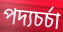
পদ্যচর্চা